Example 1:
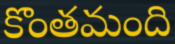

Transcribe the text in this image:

కొంతమంది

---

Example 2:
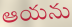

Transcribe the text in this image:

ఆయను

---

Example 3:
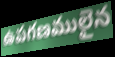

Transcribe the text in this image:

ఉపగణములైన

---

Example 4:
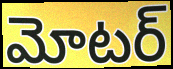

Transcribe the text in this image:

మోటర్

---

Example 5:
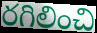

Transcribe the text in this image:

రగిలించి